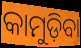
କାମୁଡ଼ିବା